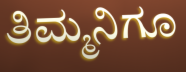
ತಿಮ್ಮನಿಗೂ